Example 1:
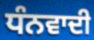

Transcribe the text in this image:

ਧੰਨਵਾਦੀ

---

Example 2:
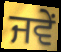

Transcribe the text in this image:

ਜਵੇਂ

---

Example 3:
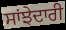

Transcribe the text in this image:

ਸਾਂਝੇਦਾਰੀ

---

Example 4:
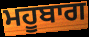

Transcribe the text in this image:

ਮਹੂਬਾਗ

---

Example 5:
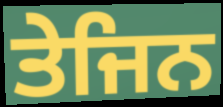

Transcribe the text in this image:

ਤੇਜਿਨ